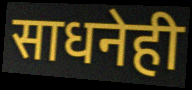
साधनेही